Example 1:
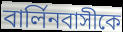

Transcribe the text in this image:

বার্লিনবাসীকে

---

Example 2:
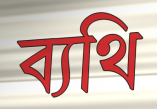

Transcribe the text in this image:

ব্যথি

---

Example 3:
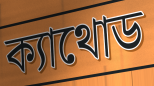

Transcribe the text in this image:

ক্যাথোড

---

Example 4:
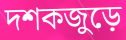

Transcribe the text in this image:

দশকজুড়ে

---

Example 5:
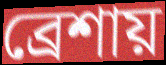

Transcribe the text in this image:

ব্রেশায়